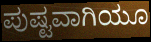
ಪುಷ್ಟವಾಗಿಯೂ